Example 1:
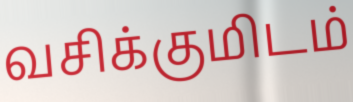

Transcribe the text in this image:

வசிக்குமிடம்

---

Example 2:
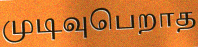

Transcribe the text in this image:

முடிவுபெறாத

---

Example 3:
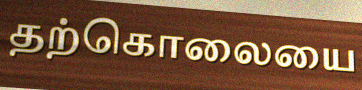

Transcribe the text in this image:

தற்கொலையை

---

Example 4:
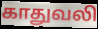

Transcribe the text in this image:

காதுவலி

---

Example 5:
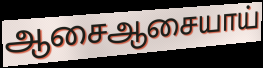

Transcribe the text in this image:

ஆசைஆசையாய்